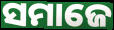
ସମାଜେ